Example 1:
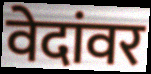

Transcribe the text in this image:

वेदांवर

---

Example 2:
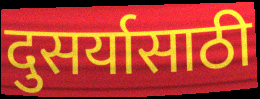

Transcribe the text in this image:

दुसर्यासाठी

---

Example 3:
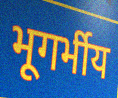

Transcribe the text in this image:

भूगर्भीय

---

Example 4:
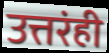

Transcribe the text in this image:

उत्तरंही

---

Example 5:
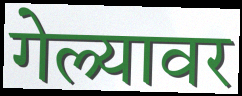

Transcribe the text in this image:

गेल्यावर